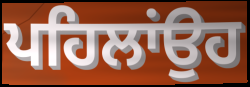
ਪਹਿਲਾਂਉਹ